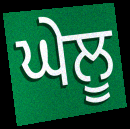
ਘੇਲੂ